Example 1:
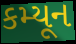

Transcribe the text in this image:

કમ્યૂન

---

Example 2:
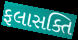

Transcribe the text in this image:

ફલાસક્તિ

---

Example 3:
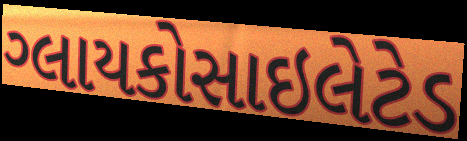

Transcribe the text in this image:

ગ્લાયકોસાઇલેટેડ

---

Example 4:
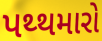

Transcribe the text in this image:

પથ્થમારો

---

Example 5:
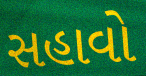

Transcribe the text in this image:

સહાવો